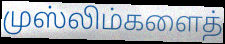
முஸ்லிம்களைத்